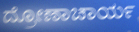
ದ್ರೋಣಾಚಾರ್ಯ